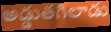
అడ్డుతగిలాడు